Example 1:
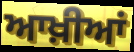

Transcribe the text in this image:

ਆਖ਼ੀਆਂ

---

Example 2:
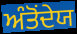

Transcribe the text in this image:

ਅੰਤੋਂਦੇਯ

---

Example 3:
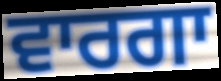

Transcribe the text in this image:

ਵਾਰਗਾ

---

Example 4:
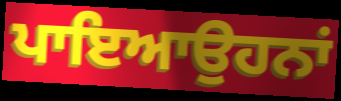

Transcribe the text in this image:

ਪਾਇਆਉਹਨਾਂ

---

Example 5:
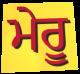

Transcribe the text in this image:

ਮੇਰੂ